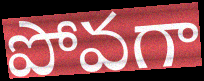
పోవగా